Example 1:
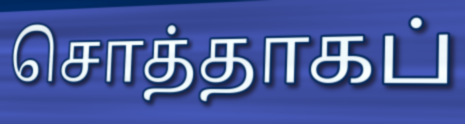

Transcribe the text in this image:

சொத்தாகப்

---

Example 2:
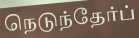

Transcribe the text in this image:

நெடுந்தேர்ப்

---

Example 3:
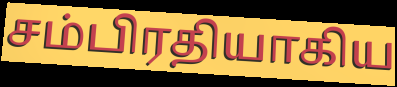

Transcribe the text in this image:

சம்பிரதியாகிய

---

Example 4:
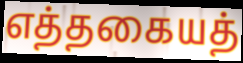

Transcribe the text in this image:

எத்தகையத்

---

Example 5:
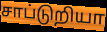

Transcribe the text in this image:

சாப்டுறியா